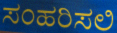
ಸಂಹರಿಸಲಿ